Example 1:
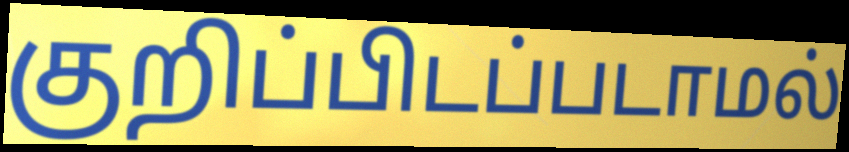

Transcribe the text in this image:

குறிப்பிடப்படாமல்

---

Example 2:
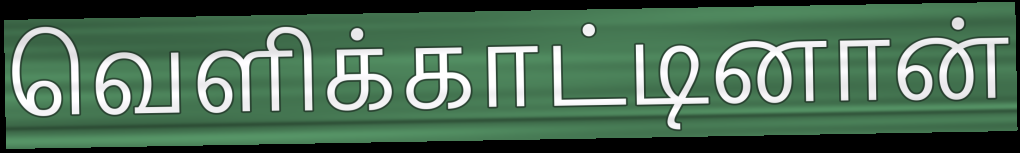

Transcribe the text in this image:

வெளிக்காட்டினான்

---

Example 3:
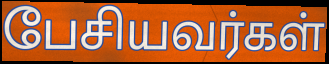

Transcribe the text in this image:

பேசியவர்கள்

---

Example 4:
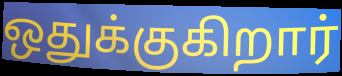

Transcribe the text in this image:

ஒதுக்குகிறார்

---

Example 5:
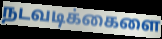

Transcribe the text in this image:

நடவடிக்கைளை